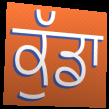
ਕੁੱਡਾ